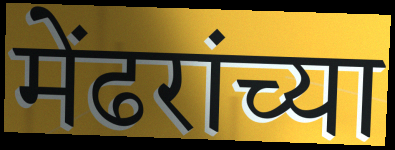
मेंढरांच्या